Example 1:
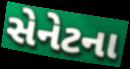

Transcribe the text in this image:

સેનેટના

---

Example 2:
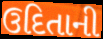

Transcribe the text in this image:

ઉદિતાની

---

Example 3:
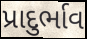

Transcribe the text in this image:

પ્રાદુર્ભાવ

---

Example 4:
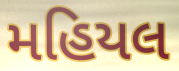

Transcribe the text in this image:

મહિયલ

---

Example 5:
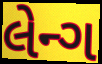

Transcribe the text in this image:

લેન્ગ